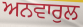
ਅਨਵਾਰੁਲ